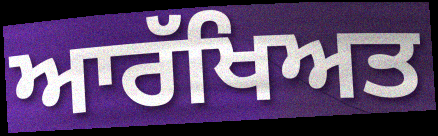
ਆਰੱਖਿਅਤ